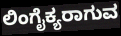
ಲಿಂಗೈಕ್ಯರಾಗುವ